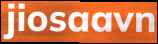
jiosaavn